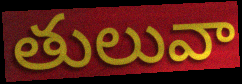
తులువా